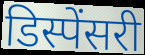
डिस्पेंसरी